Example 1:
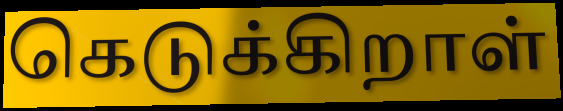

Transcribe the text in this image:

கெடுக்கிறாள்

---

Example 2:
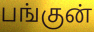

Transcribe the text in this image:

பங்குன்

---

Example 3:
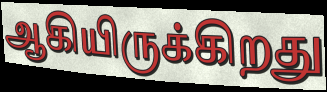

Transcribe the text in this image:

ஆகியிருக்கிறது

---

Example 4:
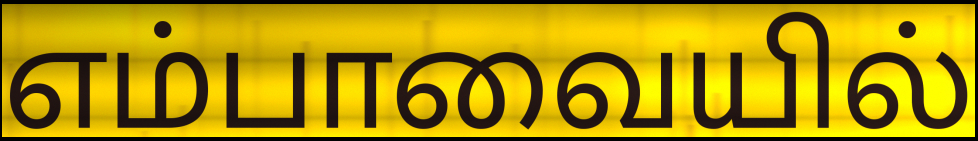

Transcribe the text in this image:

எம்பாவையில்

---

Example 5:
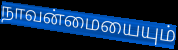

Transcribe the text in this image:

நாவன்மையையும்